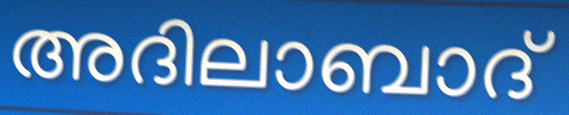
അദിലാബാദ്